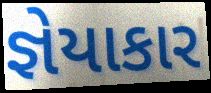
જ્ઞેયાકાર